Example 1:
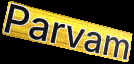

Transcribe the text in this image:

Parvam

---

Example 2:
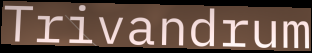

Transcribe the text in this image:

Trivandrum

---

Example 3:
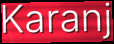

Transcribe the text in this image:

Karanj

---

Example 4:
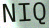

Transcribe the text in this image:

NIQ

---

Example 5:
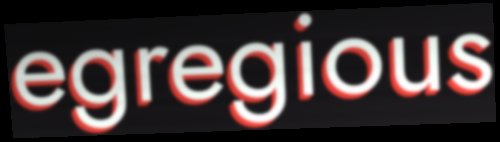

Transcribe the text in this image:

egregious